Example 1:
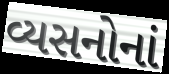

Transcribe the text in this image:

વ્યસનોનાં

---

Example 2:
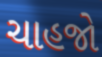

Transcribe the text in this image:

ચાહજો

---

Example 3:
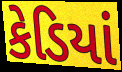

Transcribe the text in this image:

કેડિયાં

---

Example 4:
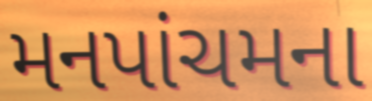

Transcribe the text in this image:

મનપાંચમના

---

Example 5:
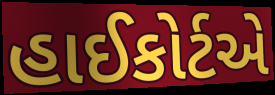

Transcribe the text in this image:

હાઈકોર્ટએ